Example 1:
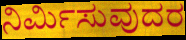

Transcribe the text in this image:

ನಿರ್ಮಿಸುವುದರ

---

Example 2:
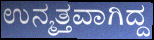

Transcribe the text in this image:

ಉನ್ಮತ್ತವಾಗಿದ್ದ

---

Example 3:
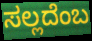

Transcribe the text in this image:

ಸಲ್ಲದೆಂಬ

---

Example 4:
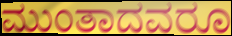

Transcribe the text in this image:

ಮುಂತಾದವರೂ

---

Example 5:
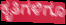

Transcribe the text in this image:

ಕೃತಿಗಳಿಗೂ